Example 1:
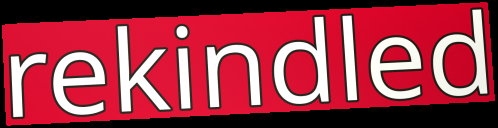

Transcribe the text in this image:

rekindled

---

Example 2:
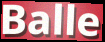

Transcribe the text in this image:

Balle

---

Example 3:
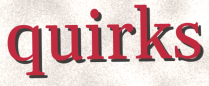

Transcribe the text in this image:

quirks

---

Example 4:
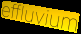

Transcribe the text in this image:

effluvium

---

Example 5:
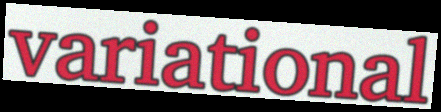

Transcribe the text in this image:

variational